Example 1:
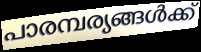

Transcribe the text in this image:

പാരമ്പര്യങ്ങൾക്ക്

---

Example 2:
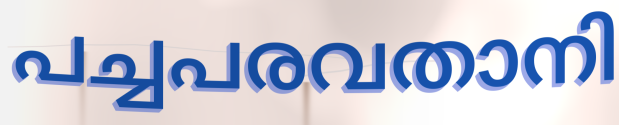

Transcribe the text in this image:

പച്ചപരവതാനി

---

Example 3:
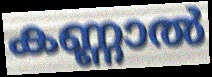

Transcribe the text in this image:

കണ്ണാൽ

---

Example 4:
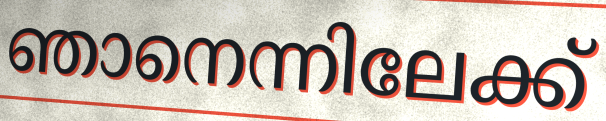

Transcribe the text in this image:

ഞാനെന്നിലേക്ക്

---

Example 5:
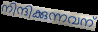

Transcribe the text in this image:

നിന്ദിക്കുന്നവന്